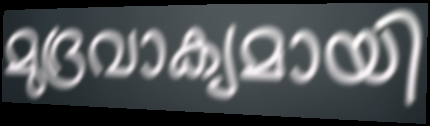
മുദ്രവാക്യമായി